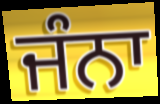
ਜੰਨਾ